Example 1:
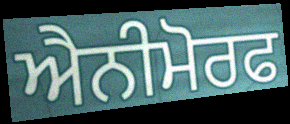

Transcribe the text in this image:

ਐਨੀਮੋਰਫ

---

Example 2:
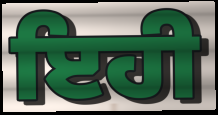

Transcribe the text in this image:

ਇਹੀ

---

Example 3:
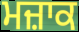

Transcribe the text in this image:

ਮਜ਼ਾਕ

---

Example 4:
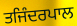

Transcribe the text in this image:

ਤਜਿੰਦਰਪਾਲ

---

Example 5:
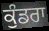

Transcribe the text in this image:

ਕੁੰਡਰਾ